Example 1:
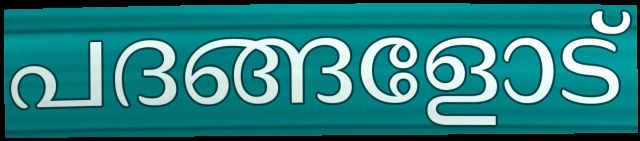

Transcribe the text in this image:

പദങ്ങളോട്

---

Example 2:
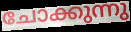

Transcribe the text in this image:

ചോക്കുന്നു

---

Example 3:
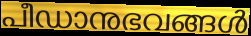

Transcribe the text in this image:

പീഡാനുഭവങ്ങൾ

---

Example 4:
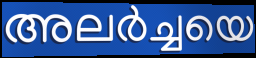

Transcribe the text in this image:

അലർച്ചയെ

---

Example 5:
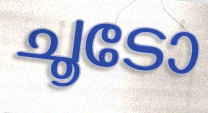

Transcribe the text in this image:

ചൂടോ